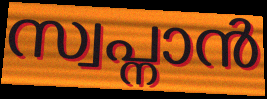
സ്വപ്നാൻ